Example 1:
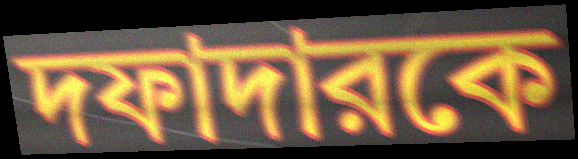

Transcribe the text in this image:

দফাদারকে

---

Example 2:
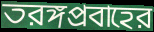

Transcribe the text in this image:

তরঙ্গপ্রবাহের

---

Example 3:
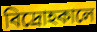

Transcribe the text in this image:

বিদ্রোহকালে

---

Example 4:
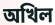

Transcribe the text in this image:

অখিল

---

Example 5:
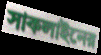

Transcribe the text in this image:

সাকলাইনের